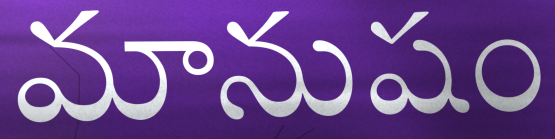
మానుషం